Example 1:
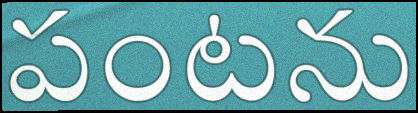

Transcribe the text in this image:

పంటను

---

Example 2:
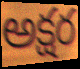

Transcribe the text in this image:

అక్షర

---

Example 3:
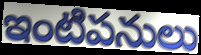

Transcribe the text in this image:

ఇంటిపనులు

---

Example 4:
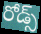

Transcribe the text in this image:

రోడ్స్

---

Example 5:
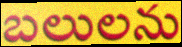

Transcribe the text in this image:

బలులను